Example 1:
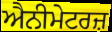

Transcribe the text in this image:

ਐਨੀਮੇਟਰਜ਼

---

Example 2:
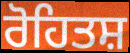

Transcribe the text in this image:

ਰੋਹਿਤਸ਼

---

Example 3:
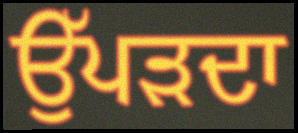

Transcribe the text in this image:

ਉੱਪੜਦਾ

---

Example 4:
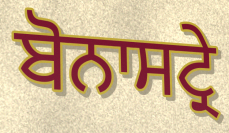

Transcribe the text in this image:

ਬੋਨਾਸਟ੍ਰੇ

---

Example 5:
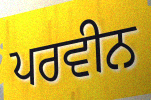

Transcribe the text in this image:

ਪਰਵੀਨ